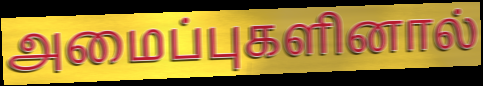
அமைப்புகளினால்